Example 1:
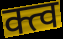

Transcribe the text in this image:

क्त्व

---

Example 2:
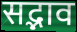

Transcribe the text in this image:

सद्भाव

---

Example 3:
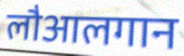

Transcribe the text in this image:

लौआलगान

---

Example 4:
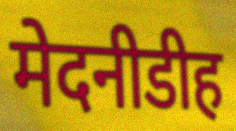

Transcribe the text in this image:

मेदनीडीह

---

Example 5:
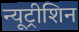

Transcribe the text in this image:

न्यूट्रीशिन